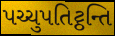
પચ્ચુપતિટ્ઠન્તિ